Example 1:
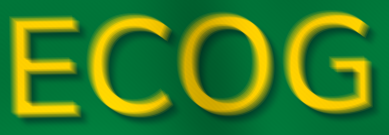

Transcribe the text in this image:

ECOG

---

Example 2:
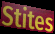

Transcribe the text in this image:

Stites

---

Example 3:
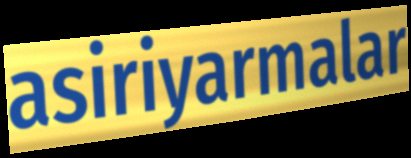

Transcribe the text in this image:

asiriyarmalar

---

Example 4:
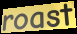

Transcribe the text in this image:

roast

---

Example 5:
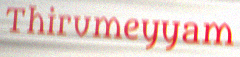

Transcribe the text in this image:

Thirumeyyam